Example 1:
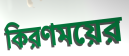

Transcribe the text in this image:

কিরণময়ের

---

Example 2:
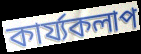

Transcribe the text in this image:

কার্য্যকলাপ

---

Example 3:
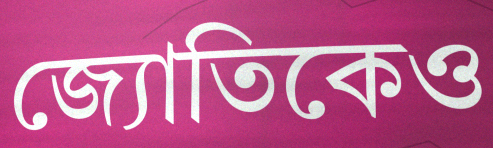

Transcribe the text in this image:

জ্যোতিকেও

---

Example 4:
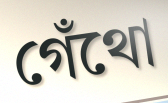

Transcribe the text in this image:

গেঁথো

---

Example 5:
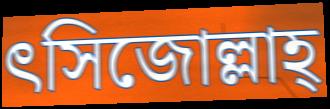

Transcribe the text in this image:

ৎসিজোল্লাহ্